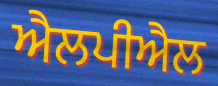
ਐਲਪੀਐਲ